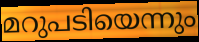
മറുപടിയെന്നും